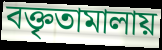
বক্তৃতামালায়